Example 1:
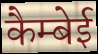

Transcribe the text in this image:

कैम्बेई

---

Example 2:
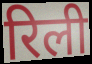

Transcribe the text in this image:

रिली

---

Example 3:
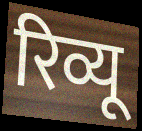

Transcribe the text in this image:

रिव्यू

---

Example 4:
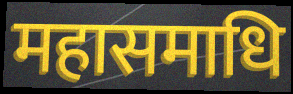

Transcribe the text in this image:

महासमाधि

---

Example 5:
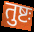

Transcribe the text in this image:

तुष्टः